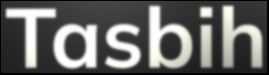
Tasbih